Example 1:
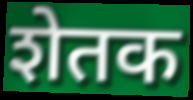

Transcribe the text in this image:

शेतक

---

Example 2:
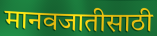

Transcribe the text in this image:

मानवजातीसाठी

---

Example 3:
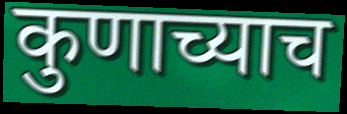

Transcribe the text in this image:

कुणाच्याच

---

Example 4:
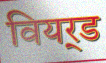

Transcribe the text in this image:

वियर्ड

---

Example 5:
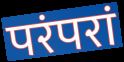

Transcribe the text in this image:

परंपरां